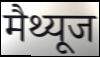
मैथ्यूज